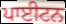
ਪਾਈਟਨ